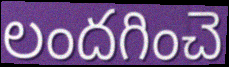
లందగించె